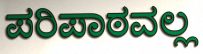
ಪರಿಪಾಠವಲ್ಲ